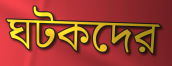
ঘটকদের